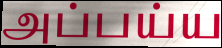
அப்பய்ய